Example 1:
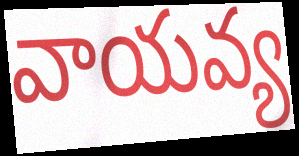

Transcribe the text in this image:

వాయవ్య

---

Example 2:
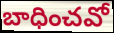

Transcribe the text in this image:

బాధించవో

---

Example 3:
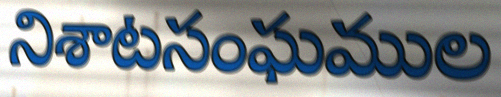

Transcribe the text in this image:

నిశాటసంఘముల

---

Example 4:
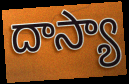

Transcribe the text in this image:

దాస్యా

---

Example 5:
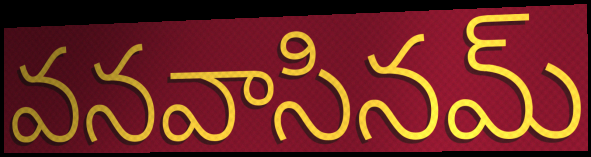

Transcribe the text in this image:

వనవాసినమ్